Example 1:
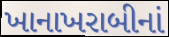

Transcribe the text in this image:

ખાનાખરાબીનાં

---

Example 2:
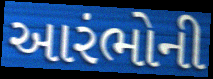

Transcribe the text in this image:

આરંભોની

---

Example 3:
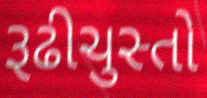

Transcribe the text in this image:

રૂઢીચુસ્તો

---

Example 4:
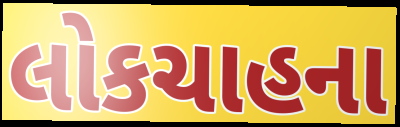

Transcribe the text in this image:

લોકચાહના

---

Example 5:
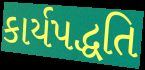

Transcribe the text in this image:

કાર્યપદ્ધતિ